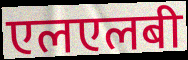
एलएलबी